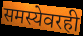
समस्येवरही